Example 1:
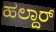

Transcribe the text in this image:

ಹಲ್ದಾರ್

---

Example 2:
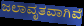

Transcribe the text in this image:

ಜಲಾವೃತವಾಗಿವೆ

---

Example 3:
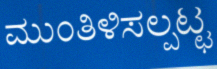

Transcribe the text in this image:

ಮುಂತಿಳಿಸಲ್ಪಟ್ಟ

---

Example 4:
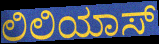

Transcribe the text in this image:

ಲಿಲಿಯಾಸ್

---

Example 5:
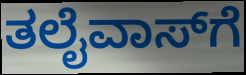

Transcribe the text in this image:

ತಲೈವಾಸ್‌ಗೆ